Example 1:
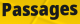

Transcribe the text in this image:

Passages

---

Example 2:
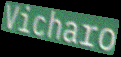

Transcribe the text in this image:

Vicharo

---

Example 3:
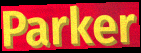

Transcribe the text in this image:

Parker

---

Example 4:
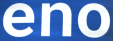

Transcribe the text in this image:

eno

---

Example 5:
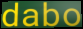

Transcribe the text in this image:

dabo